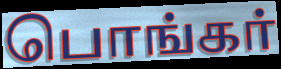
பொங்கர்